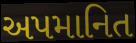
અપમાનિત